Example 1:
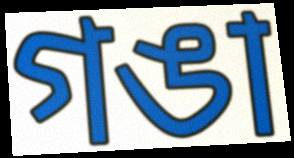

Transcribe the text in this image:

গঙা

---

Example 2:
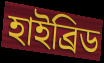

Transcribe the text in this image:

হাইব্ৰিড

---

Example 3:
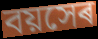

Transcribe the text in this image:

বয়সেৰ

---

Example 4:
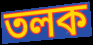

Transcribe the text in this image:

তলক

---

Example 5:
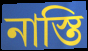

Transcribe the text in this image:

নাস্তি